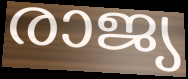
രാജ്യ